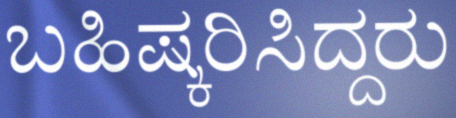
ಬಹಿಷ್ಕರಿಸಿದ್ದರು